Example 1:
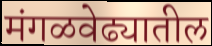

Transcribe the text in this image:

मंगळवेढ्यातील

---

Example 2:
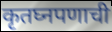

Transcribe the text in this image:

कृतघ्नपणाची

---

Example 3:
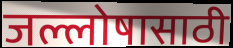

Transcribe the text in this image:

जल्लोषासाठी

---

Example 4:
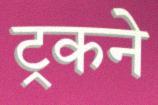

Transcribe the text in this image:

ट्रकने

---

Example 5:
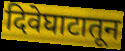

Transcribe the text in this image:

दिवेघाटातून